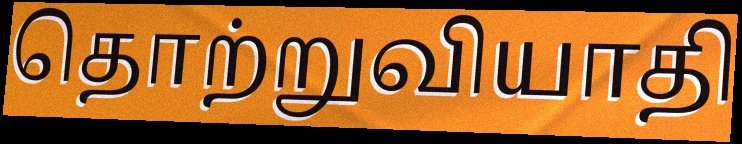
தொற்றுவியாதி